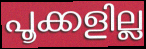
പൂക്കളില്ല